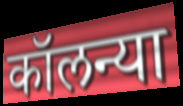
कॉलन्या